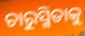
ଚାରୁସ୍ମିତାକୁ